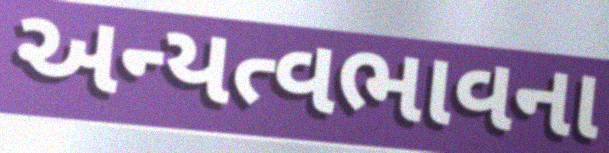
અન્યત્વભાવના